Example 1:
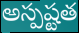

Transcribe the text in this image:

అస్పష్టత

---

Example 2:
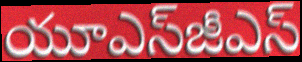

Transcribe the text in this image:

యూఎస్‌జీఎస్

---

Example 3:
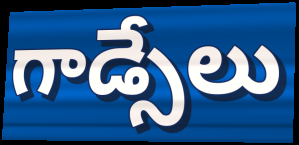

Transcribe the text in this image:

గాడ్సేలు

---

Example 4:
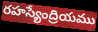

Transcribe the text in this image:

రహస్యేంద్రియము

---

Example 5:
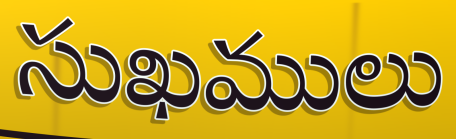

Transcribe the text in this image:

సుఖములు